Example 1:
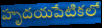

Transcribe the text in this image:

హృదయపేటికలో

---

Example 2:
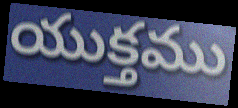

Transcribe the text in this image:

యుక్తము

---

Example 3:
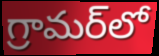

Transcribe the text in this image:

గ్రామర్‌లో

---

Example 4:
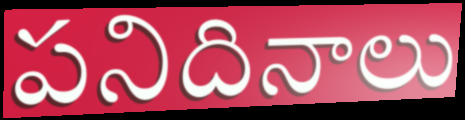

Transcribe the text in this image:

పనిదినాలు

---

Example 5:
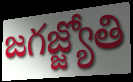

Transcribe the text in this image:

జగజ్జ్యోతి